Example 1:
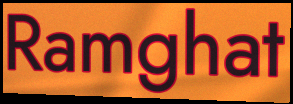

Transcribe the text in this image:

Ramghat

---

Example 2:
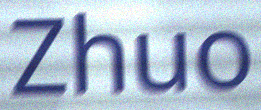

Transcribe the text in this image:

Zhuo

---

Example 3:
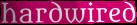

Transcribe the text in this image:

hardwired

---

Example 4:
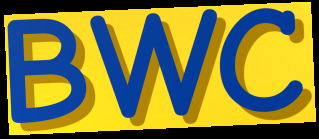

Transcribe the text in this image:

BWC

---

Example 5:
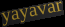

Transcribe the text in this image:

yayavar